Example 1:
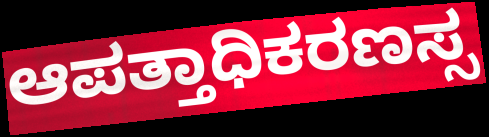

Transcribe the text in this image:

ಆಪತ್ತಾಧಿಕರಣಸ್ಸ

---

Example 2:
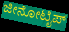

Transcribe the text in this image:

ಜೀನೋಟೈಪ್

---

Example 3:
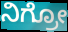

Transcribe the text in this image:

ನಿಗ್ರೋ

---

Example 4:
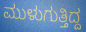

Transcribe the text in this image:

ಮುಳುಗುತ್ತಿದ್ದ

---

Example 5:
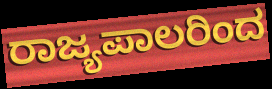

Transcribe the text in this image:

ರಾಜ್ಯಪಾಲರಿಂದ